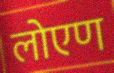
लोएण